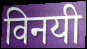
विनयी